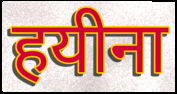
हयीना